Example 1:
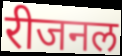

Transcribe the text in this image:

रीजनल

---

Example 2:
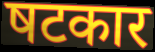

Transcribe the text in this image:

षटकार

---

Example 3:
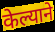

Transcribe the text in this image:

केल्याने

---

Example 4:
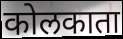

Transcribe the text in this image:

कोलकाता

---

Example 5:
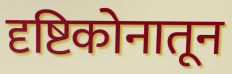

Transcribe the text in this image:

दृष्टिकोनातून